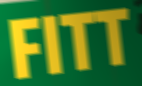
FITT